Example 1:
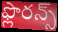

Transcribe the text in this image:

ఫ్లొరన్స్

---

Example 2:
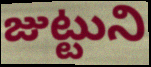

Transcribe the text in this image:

జుట్టుని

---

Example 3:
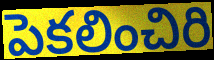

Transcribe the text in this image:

పెకలించిరి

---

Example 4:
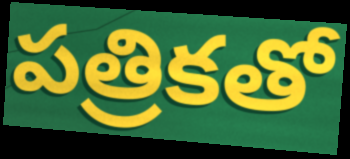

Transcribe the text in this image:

పత్రికతో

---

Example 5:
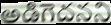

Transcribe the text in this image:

అడిగెదనని